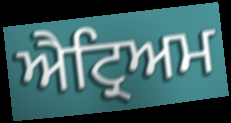
ਐਟ੍ਰਿਅਮ